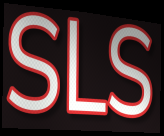
SLS